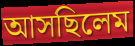
আসছিলেম